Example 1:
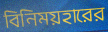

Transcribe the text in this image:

বিনিময়হারের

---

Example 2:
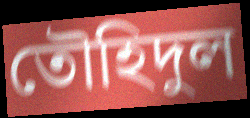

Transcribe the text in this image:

তৌহিদুল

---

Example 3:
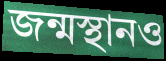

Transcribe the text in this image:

জন্মস্থানও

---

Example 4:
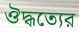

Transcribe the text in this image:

ঔদ্ধত্যের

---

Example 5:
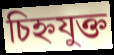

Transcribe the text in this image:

চিহ্নযুক্ত